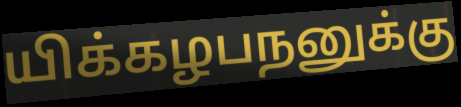
யிக்கழபநனுக்கு